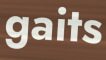
gaits